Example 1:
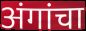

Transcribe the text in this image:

अंगांचा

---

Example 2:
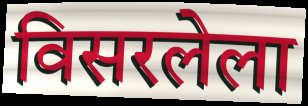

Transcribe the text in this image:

विसरलेला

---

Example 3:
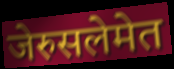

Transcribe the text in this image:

जेरुसलेमेत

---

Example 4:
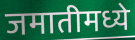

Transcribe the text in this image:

जमातीमध्ये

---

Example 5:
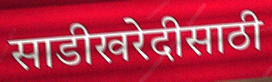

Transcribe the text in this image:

साडीखरेदीसाठी